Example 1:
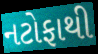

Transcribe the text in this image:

નટોફાથી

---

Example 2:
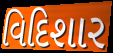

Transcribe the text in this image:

વિદિશાર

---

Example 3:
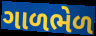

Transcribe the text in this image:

ગાળભેળ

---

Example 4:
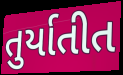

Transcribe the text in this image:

તુર્યાતીત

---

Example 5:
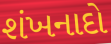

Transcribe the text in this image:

શંખનાદો